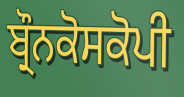
ਬ੍ਰੌਨਕੋਸਕੋਪੀ